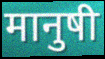
मानुषी